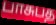
பாசுபத